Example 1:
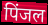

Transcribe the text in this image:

पिंजल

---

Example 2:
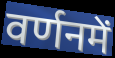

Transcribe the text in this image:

वर्णनमें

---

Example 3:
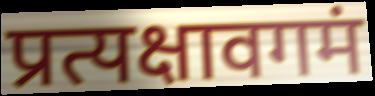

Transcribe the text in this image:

प्रत्यक्षावगमं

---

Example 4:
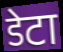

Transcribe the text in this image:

डेटा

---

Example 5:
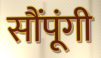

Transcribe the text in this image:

सौंपूंगी